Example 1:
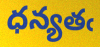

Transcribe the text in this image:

ధన్యతఁ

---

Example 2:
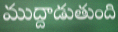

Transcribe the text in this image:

ముద్దాడుతుంది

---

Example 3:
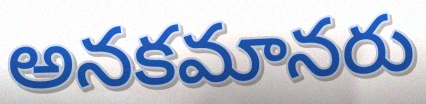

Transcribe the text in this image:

అనకమానరు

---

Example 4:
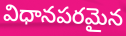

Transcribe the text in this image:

విధానపరమైన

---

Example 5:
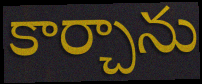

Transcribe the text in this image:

కార్చాను